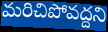
మరిచిపోవద్దని